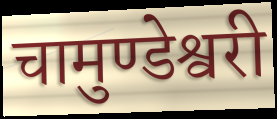
चामुण्डेश्वरी